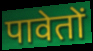
पावेतों